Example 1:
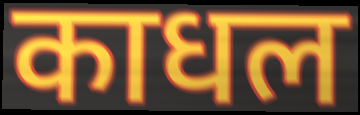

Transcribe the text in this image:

काधल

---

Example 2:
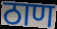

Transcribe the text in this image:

ठाण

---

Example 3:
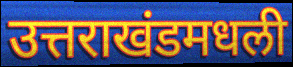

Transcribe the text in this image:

उत्तराखंडमधली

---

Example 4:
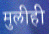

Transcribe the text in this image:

मुलीही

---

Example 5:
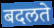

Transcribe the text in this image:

बदलते